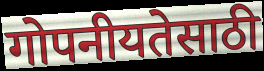
गोपनीयतेसाठी